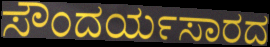
ಸೌಂದರ್ಯಸಾರದ